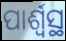
ପାର୍ଶ୍ୱସ୍ଥ